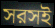
সরসই